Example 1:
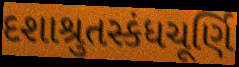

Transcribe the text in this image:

દશાશ્રુતસ્કંધચૂર્ણિ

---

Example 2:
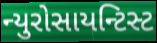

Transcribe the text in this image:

ન્યુરોસાયન્ટિસ્ટ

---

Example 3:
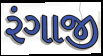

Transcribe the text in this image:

રંગાજી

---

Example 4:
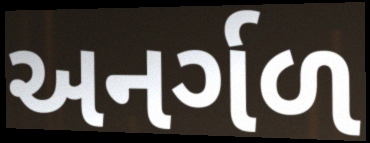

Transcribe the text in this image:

અનર્ગળ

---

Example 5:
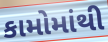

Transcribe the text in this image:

કામોમાંથી